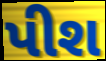
પીશ